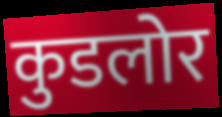
कुडलोर